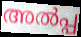
അൽപ്പ